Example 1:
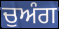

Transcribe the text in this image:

ਚੁਅੰਗ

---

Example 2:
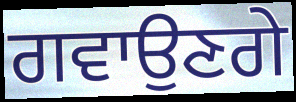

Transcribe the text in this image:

ਗਵਾਉਣਗੇ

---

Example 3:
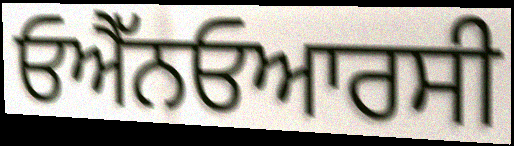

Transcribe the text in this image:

ਓਐੱਨਓਆਰਸੀ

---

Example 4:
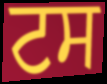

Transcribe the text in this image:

ਟਸ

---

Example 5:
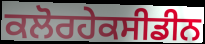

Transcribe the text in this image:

ਕਲੋਰਹੇਕਸੀਡੀਨ